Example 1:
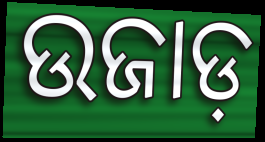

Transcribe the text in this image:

ଉଜାଡ଼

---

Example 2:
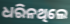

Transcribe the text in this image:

ଧରିନଥିଲେ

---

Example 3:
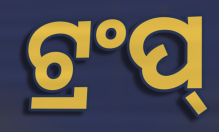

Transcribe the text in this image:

ଟ୍ରଂପ୍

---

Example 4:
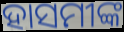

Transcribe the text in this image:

ହାସମୀଙ୍କ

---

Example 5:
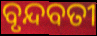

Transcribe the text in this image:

ବୃନ୍ଦବତୀ